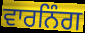
ਵਾਰਨਿੰਗ